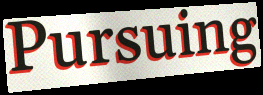
Pursuing